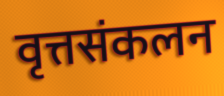
वृत्तसंकलन